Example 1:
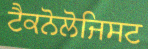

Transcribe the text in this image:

ਟੈਕਨੋਲੋਜਿਸਟ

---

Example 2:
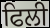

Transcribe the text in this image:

ਫਿਲੀ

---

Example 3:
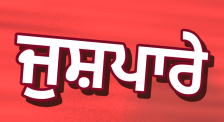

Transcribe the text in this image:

ਜੁਸ਼ਪਾਰੇ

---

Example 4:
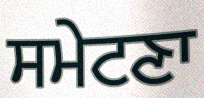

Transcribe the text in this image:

ਸਮੇਟਣਾ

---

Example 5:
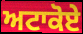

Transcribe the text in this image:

ਅਟਾਕੋਏ